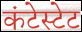
कंटेस्टेट